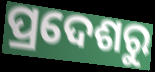
ପ୍ରଦେଶରୁ